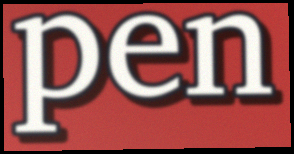
pen